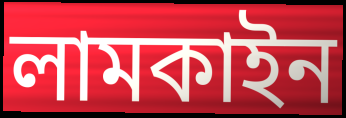
লামকাইন